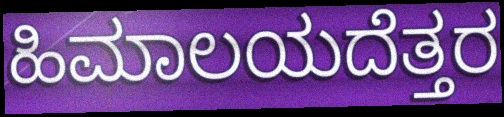
ಹಿಮಾಲಯದೆತ್ತರ